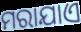
ମରାଯାଏ